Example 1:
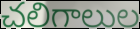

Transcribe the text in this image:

చలిగాలుల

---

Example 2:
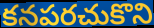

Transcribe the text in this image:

కనపరచుకొని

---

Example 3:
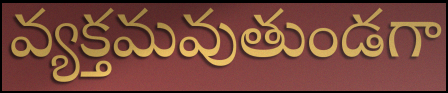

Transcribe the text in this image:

వ్యక్తమవుతుండగా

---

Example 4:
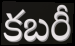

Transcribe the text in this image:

కబరీ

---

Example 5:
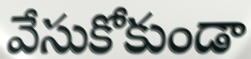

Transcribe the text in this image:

వేసుకోకుండా